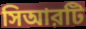
সিআরটি